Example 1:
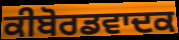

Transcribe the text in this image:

ਕੀਬੋਰਡਵਾਦਕ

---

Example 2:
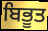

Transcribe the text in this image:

ਬਿਭੂਤ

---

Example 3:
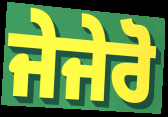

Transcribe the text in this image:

ਜੇਜੇਰੋ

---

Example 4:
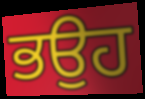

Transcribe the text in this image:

ਭਉਹ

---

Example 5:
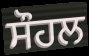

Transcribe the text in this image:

ਸੌਹਲ